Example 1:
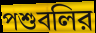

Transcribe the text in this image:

পশুবলির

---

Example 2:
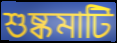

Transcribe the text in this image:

শুষ্কমাটি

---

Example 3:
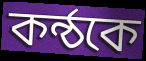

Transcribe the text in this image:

কন্ঠকে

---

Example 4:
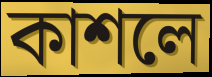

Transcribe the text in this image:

কাশলে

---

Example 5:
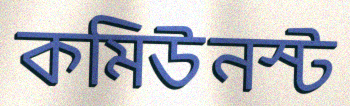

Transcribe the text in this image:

কমিউনস্ট